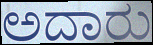
ಅದಾರು